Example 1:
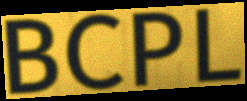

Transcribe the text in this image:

BCPL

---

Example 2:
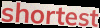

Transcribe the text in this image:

shortest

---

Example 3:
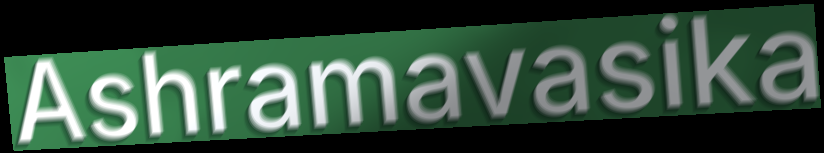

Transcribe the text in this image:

Ashramavasika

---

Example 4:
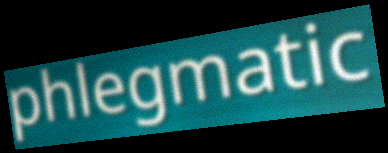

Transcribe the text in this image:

phlegmatic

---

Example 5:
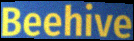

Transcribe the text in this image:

Beehive